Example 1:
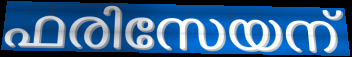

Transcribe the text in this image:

ഫരിസേയന്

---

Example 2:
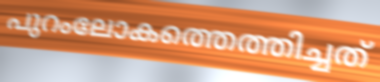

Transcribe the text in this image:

പുറംലോകത്തെത്തിച്ചത്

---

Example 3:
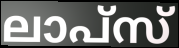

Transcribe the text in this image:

ലാപ്സ്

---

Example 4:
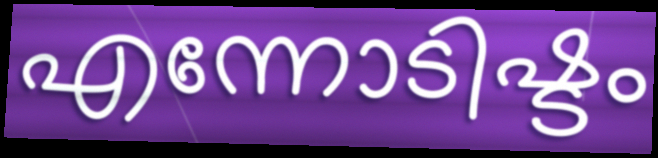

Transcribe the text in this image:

എന്നോടിഷ്ടം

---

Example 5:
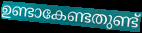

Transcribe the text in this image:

ഉണ്ടാകേണ്ടതുണ്ട്